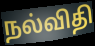
நல்விதி